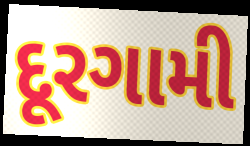
દૂરગામી